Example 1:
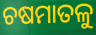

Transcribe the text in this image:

ଚଷମାତଳୁ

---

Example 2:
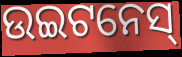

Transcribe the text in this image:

ଉଇଟନେସ୍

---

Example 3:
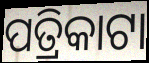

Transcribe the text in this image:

ପତ୍ରିକାଟା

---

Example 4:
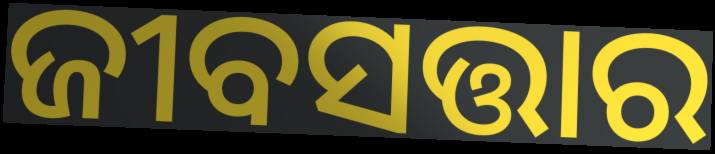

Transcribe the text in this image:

ଜୀବସତ୍ତାର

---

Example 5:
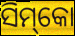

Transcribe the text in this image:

ସିମ୍‌କୋ